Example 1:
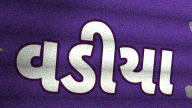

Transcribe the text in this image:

વડીયા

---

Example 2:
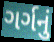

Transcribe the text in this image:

ગર્ગનું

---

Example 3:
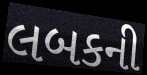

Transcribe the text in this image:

લબકની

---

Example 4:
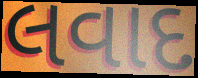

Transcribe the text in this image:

લવાદ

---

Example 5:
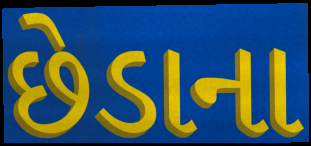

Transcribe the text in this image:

છેડાના